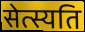
सेत्स्यति